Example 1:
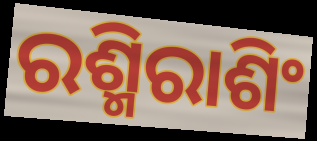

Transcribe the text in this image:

ରଶ୍ମିରାଶିଂ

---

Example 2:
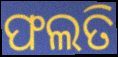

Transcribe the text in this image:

ଫଲତି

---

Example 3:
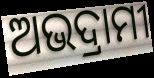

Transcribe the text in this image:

ଅଭଦ୍ରାମୀ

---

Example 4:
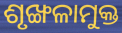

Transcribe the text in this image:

ଶୃଙ୍ଖଳାମୁକ୍ତ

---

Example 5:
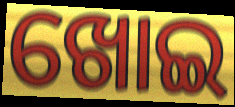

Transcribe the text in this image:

ଖୋଇ